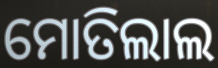
ମୋତିଲାଲ